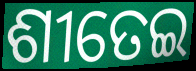
ଶୀତେଇ